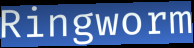
Ringworm